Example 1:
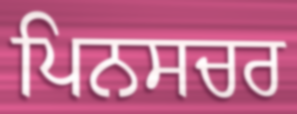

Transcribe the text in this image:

ਪਿਨਸਚਰ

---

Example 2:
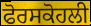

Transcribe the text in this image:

ਫੋਰਸਕੋਹਲੀ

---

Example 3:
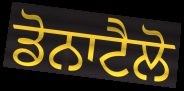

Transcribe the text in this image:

ਡੋਨਾਟੈਲੋ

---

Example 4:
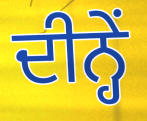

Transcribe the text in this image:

ਦੀਨ੍ਹੇਂ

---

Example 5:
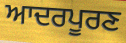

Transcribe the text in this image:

ਆਦਰਪੂਰਣ